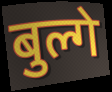
बुल्गे